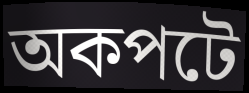
অকপটে